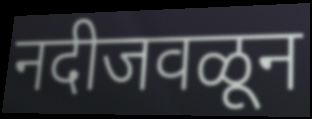
नदीजवळून